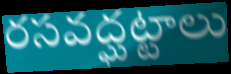
రసవద్ఘట్టాలు